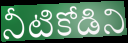
నీటికోడిని